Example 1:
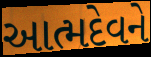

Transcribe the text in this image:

આત્મદેવને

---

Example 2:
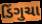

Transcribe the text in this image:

ડિંગુચા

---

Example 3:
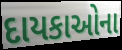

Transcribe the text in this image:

દાયકાઓના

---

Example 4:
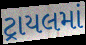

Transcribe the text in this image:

ટ્રાયલમાં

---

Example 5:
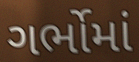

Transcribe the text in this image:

ગર્ભોમાં